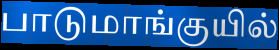
பாடுமாங்குயில்